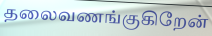
தலைவணங்குகிறேன்